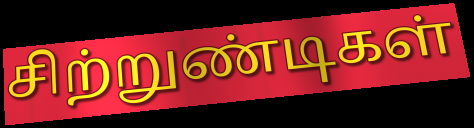
சிற்றுண்டிகள்